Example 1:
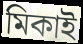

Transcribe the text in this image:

মিকাই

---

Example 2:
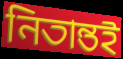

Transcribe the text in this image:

নিতান্তই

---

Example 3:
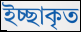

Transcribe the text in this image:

ইচ্ছাকৃত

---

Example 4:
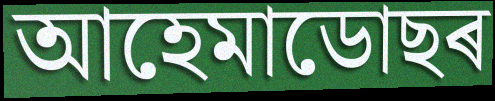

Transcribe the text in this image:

আহেমাডোছৰ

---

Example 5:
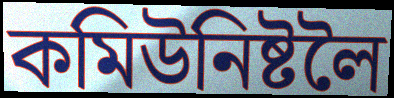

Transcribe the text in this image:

কমিউনিষ্টলৈ